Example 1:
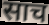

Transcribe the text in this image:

साच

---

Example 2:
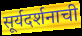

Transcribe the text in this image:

सूर्यदर्शनाची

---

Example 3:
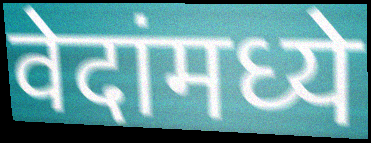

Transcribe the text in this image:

वेदांमध्ये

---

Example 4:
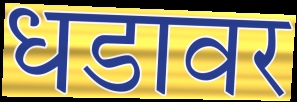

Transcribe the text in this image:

धडावर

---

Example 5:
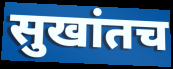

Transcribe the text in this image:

सुखांतच